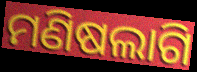
ମଣିଷଲାଗି